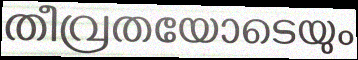
തീവ്രതയോടെയും